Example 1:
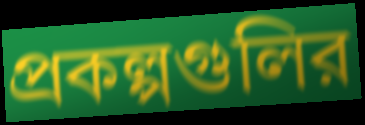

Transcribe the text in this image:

প্রকল্পগুলির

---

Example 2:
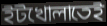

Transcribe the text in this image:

ইটখোলাতেই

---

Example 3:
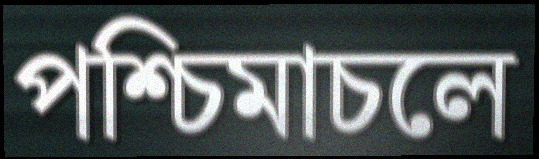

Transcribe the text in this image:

পশ্চিমাচলে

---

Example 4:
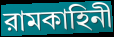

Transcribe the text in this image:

রামকাহিনী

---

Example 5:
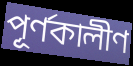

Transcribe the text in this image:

পূর্ণকালীণ